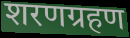
शरणग्रहण